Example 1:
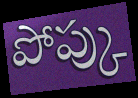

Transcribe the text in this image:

పోప్కు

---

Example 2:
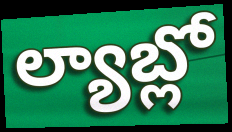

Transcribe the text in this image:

ల్యాబ్లో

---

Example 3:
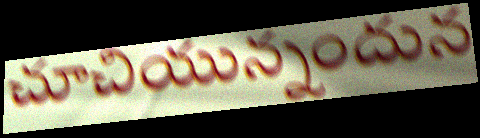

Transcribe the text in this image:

చూచియున్నందున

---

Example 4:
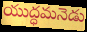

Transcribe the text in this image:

యుద్ధమనెడు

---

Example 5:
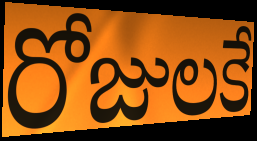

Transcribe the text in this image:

రోజులకే